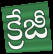
క్రేజీ